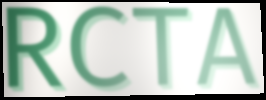
RCTA